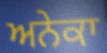
ਅਨੇਕਾ